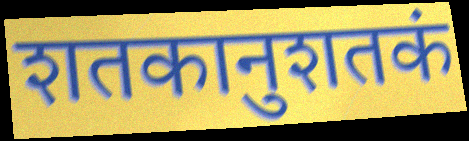
शतकानुशतकं